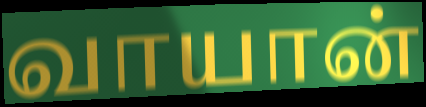
வாயான்